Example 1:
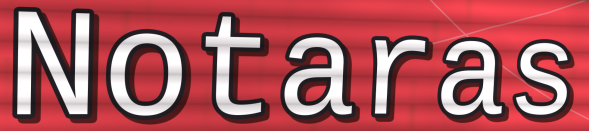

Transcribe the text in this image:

Notaras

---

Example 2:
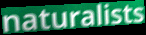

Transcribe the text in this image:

naturalists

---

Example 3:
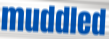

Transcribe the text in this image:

muddled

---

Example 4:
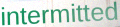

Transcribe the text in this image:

intermitted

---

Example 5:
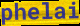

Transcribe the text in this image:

phelai